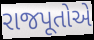
રાજપૂતોએ